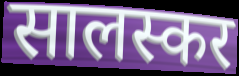
सालस्कर